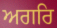
ਅਗਰਿ